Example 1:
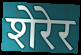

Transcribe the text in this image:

शेरेर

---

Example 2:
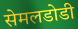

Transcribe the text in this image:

सेमलडोडी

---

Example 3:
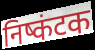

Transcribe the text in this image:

निष्कंटक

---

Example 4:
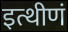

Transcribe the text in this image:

इत्थीणं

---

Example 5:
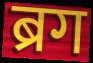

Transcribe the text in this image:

ब्रग